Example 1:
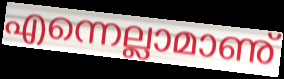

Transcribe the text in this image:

എന്നെല്ലാമാണു്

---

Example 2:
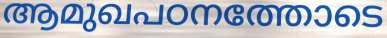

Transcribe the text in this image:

ആമുഖപഠനത്തോടെ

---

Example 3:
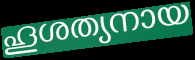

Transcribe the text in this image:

ഹൂശത്യനായ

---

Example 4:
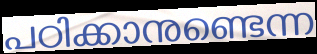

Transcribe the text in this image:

പഠിക്കാനുണ്ടെന്ന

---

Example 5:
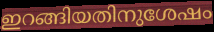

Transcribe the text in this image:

ഇറങ്ങിയതിനുശേഷം